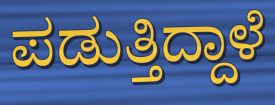
ಪಡುತ್ತಿದ್ದಾಳೆ